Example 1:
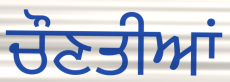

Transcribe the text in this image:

ਚੌਣਤੀਆਂ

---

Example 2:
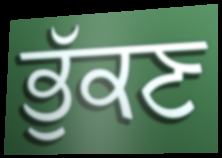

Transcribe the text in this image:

ਭੁੱਕਣ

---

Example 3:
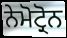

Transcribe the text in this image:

ਨੇਮੋਟ੍ਰੋਨ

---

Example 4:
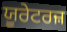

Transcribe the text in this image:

ਯੂਰੇਟਰਜ਼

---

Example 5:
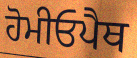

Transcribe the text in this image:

ਹੋਮੀਓਪੈਥ